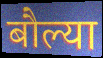
बौल्या